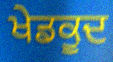
ਖੇਡਕੂਦ